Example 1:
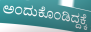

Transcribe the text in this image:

ಅಂದುಕೊಂಡಿದ್ದಕ್ಕೆ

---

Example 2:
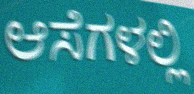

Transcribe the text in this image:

ಆಸೆಗಳಲ್ಲಿ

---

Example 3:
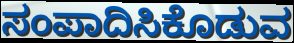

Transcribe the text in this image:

ಸಂಪಾದಿಸಿಕೊಡುವ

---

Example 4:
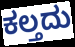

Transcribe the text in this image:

ಕಲ್ತದು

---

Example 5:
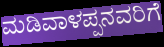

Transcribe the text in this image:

ಮಡಿವಾಳಪ್ಪನವರಿಗೆ